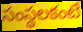
సంస్థలకంటే